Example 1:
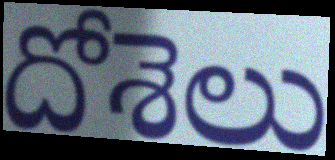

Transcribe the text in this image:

దోశెలు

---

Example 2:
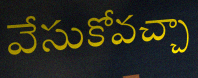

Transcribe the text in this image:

వేసుకోవచ్చా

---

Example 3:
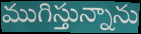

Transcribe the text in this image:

ముగిస్తున్నాను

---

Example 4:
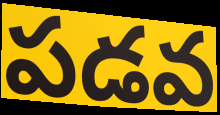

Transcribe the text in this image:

పడవ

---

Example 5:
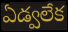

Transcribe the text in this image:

ఏడ్వలేక